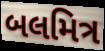
બલમિત્ર